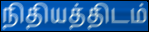
நிதியத்திடம்